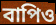
বাপিও